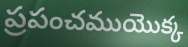
ప్రపంచముయొక్క